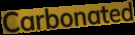
Carbonated